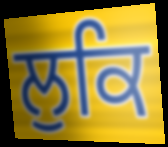
ਲੁਕਿ